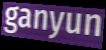
ganyun